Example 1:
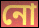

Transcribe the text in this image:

নো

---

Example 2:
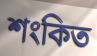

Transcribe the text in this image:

শংকিত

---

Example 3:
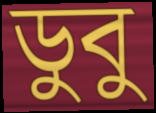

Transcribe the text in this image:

ডুবু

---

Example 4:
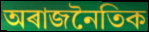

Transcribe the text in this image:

অৰাজনৈতিক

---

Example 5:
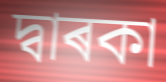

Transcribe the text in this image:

দ্বাৰকা